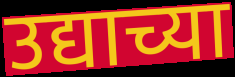
उद्याच्या